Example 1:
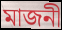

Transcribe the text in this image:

মাজনী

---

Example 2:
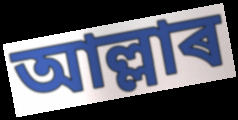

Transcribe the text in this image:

আল্লাৰ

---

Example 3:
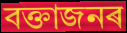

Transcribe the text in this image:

বক্তাজনৰ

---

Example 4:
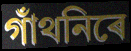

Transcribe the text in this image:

গাঁথনিৰে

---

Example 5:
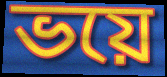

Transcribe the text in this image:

ভয়ে